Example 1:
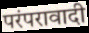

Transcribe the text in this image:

परंपरावादी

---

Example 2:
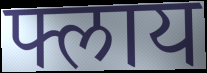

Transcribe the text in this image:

फ्लाय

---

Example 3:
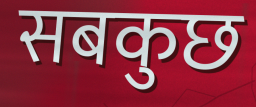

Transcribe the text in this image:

सबकुछ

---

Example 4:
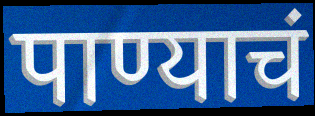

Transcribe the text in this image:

पाण्याचं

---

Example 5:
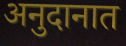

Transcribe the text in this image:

अनुदानात